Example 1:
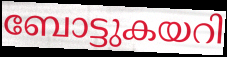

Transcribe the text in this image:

ബോട്ടുകയറി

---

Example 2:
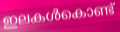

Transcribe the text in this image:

ഇലകൾകൊണ്ട്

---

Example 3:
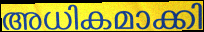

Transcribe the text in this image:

അധികമാക്കി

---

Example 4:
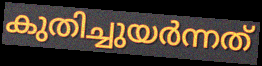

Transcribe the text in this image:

കുതിച്ചുയർന്നത്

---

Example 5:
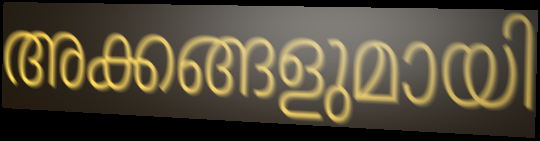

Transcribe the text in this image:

അക്കങ്ങളുമായി